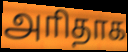
அரிதாக